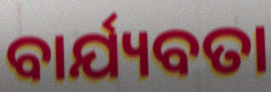
ବାର୍ଯ୍ୟବତା